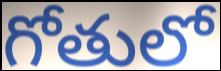
గోతులో